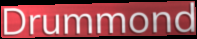
Drummond